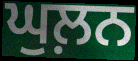
ਘੁਲ਼ਨ